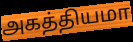
அகத்தியமா